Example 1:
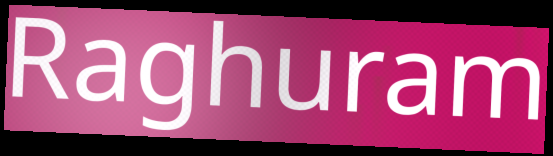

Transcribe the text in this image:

Raghuram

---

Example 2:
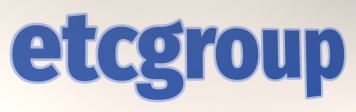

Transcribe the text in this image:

etcgroup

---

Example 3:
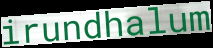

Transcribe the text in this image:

irundhalum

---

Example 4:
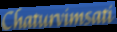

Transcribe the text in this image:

Chaturvimsati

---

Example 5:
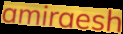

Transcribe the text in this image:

amiraesh